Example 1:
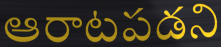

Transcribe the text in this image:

ఆరాటపడని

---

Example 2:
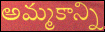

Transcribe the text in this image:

అమ్మకాన్ని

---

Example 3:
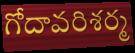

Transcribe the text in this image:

గోదావరిశర్మ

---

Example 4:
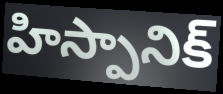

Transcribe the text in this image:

హిస్పానిక్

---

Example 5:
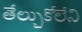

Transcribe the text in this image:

తేల్చుకోలేని